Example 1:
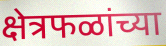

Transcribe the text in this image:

क्षेत्रफळांच्या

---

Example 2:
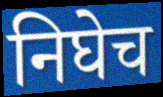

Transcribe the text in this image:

निघेच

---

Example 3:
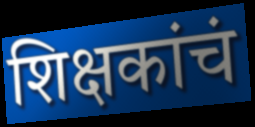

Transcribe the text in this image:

शिक्षकांचं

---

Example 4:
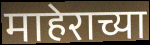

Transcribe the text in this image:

माहेराच्या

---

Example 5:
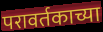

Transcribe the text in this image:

परावर्तकाच्या